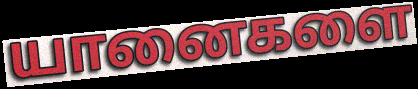
யானைகளை